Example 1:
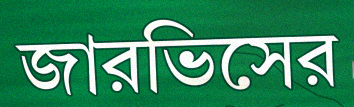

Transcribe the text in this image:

জারভিসের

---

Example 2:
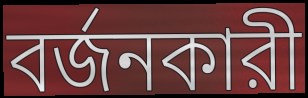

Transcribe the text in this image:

বর্জনকারী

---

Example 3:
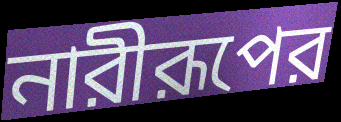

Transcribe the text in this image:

নারীরূপের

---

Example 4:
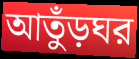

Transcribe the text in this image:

আতুঁড়ঘর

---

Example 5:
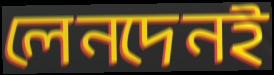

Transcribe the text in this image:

লেনদেনই